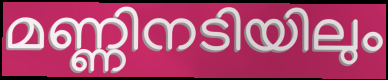
മണ്ണിനടിയിലും